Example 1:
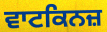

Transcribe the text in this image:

ਵਾਟਕਿਨਜ਼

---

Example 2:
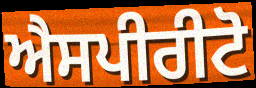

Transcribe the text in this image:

ਐਸਪੀਰੀਟੋ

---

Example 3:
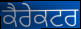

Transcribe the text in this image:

ਕੈਰੇਕਟਰ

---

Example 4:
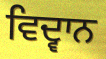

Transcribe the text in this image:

ਵਿਦ੍ਵਾਨ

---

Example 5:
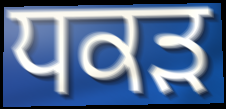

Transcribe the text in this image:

ਧਕੜ